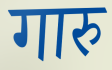
गारु